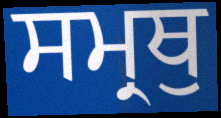
ਸਮ੍ਰਥੁ